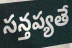
సన్తప్యతే